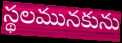
స్థలమునకును